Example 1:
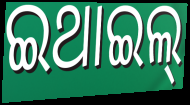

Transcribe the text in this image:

ଇଥାଇଲ୍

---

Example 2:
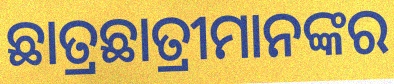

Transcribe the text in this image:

ଛାତ୍ରଛାତ୍ରୀମାନଙ୍କର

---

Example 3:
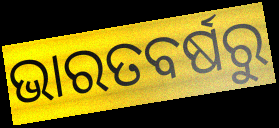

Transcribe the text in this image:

ଭାରତବର୍ଷରୁ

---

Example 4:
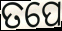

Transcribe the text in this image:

ତପେ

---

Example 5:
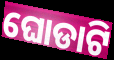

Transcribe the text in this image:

ଘୋଡାଟି